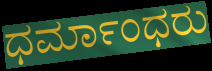
ಧರ್ಮಾಂಧರು